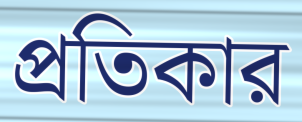
প্রতিকার